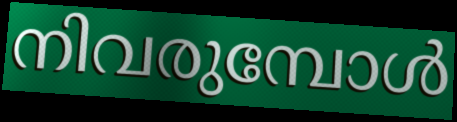
നിവരുമ്പോൾ